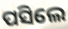
ପସିଲେ